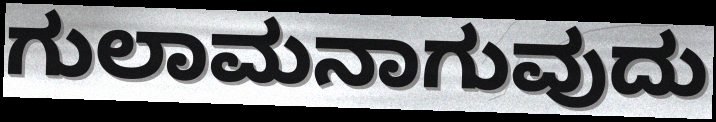
ಗುಲಾಮನಾಗುವುದು